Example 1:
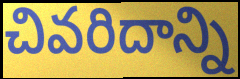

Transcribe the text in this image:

చివరిదాన్ని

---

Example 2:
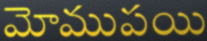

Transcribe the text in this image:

మోముపయి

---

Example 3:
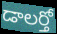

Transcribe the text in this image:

డాలర్తో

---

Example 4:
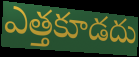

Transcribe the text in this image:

ఎత్తకూడదు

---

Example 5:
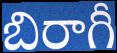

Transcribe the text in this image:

బిరాగీ